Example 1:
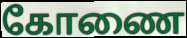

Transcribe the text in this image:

கோணை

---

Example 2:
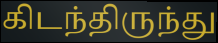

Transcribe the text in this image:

கிடந்திருந்து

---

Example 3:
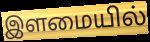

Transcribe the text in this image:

இளமையில்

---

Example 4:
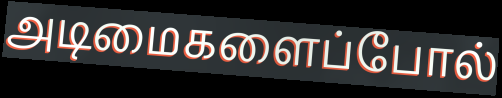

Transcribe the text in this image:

அடிமைகளைப்போல்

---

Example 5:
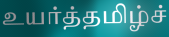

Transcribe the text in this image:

உயர்த்தமிழ்ச்